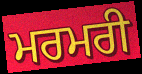
ਮਰਮਰੀ